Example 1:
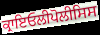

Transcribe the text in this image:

ਕ੍ਰਾਇਓਲੀਪੋਲੀਸਿਸ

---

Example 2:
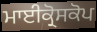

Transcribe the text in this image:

ਮਾਈਕ੍ਰੋਸਕੋਪ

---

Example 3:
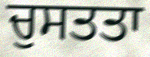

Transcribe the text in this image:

ਚੁਸਤਤਾ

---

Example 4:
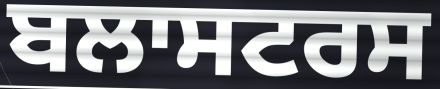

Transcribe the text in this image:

ਬਲਾਸਟਰਸ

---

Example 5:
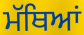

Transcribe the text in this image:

ਮੱਥਿਆਂ